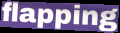
flapping